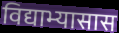
विद्याभ्यासास